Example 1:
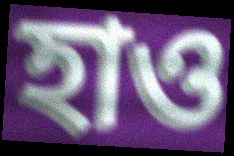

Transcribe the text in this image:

হাও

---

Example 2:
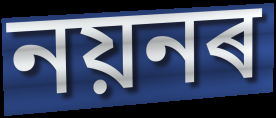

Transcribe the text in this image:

নয়নৰ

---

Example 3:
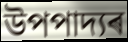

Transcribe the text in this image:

উপপাদ্যৰ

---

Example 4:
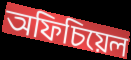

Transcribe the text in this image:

অফিচিয়েল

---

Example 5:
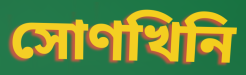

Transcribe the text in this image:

সোণখিনি